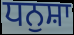
ਧਨੁਸ਼ਾ